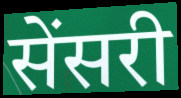
सेंसरी